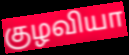
குழவியா